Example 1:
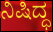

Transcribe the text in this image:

ನಿಷಿದ್ಧ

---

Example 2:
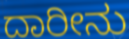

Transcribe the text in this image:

ದಾರೀನು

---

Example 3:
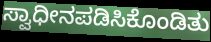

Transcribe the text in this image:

ಸ್ವಾಧೀನಪಡಿಸಿಕೊಂಡಿತು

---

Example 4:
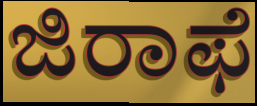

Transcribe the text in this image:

ಜಿರಾಫೆ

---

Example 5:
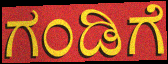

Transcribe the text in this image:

ಗಂಡಿಗೆ